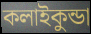
কলাইকুন্ডা